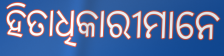
ହିତାଧିକାରୀମାନେ